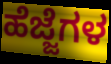
ಹೆಜ್ಜೆಗಳ